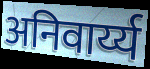
अनिवार्य्य